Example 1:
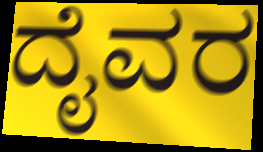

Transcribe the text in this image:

ದೈವರ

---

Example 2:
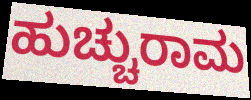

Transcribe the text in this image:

ಹುಚ್ಚುರಾಮ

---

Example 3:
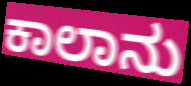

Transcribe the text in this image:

ಕಾಲಾನು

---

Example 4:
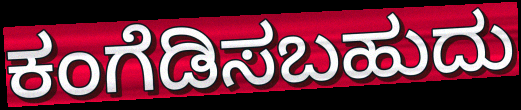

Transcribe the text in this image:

ಕಂಗೆಡಿಸಬಹುದು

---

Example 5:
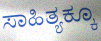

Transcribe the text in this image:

ಸಾಹಿತ್ಯಕ್ಕೂ